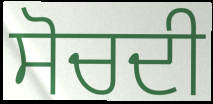
ਸੋਚਦੀ